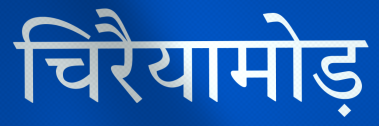
चिरैयामोड़